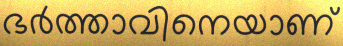
ഭർത്താവിനെയാണ്